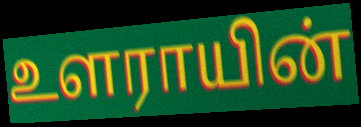
உளராயின்